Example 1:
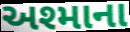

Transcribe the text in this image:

અશ્માના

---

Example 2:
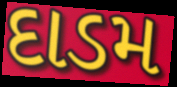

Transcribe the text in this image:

દાડમ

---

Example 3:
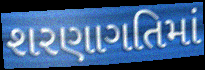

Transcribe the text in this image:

શરણાગતિમાં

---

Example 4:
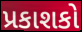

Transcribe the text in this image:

પ્રકાશકો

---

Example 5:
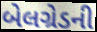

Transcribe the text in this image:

બેલગ્રેડની